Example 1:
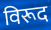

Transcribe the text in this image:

विरूद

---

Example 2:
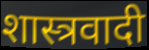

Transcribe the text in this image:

शास्त्रवादी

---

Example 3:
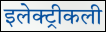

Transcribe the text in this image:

इलेक्ट्रीकली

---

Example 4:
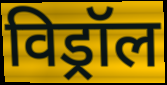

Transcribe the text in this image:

विड्रॉल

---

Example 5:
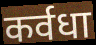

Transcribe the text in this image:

कर्वधा